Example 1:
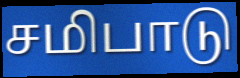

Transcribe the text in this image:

சமிபாடு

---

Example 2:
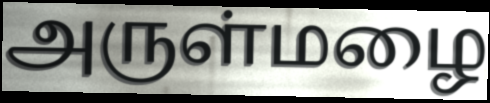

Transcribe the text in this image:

அருள்மழை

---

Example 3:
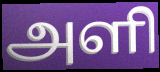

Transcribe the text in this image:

அளி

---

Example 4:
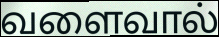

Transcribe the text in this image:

வளைவால்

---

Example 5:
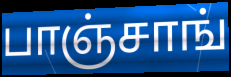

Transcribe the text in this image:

பாஞ்சாங்